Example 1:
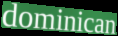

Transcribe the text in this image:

dominican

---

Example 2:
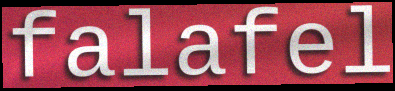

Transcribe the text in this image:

falafel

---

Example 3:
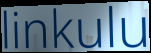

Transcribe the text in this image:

linkulu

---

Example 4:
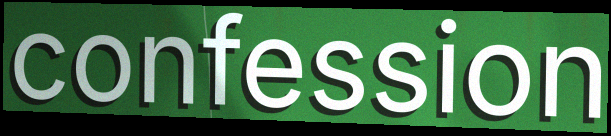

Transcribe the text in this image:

confession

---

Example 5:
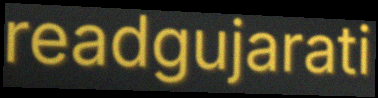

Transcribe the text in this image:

readgujarati